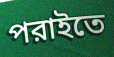
পরাইতে